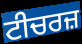
ਟੀਚਰਜ਼